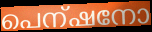
പെന്ഷനോ